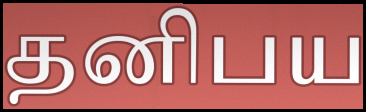
தனிபய